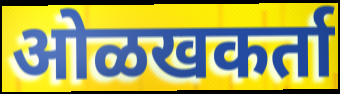
ओळखकर्ता